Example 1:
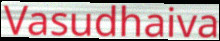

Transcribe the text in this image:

Vasudhaiva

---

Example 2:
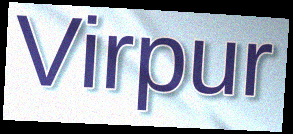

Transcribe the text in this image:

Virpur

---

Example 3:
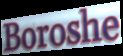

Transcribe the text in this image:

Boroshe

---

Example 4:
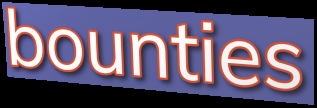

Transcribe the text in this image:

bounties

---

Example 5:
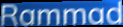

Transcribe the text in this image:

Rammad